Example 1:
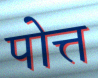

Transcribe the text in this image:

पोत्त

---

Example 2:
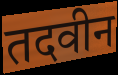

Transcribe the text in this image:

तदवीन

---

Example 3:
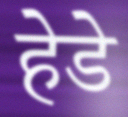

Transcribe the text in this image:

हेडे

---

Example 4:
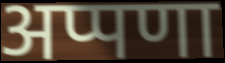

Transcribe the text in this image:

अप्पणा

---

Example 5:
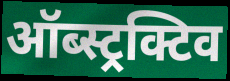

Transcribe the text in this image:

ऑब्स्ट्रक्टिव